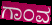
ಗಾಂವ